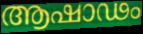
ആഷാഢം